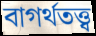
বাগর্থতত্ত্ব